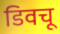
डिवचू